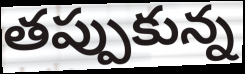
తప్పుకున్న